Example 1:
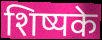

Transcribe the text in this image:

शिष्यके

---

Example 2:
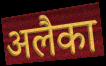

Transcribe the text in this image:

अलैका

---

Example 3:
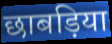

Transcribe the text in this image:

छाबड़िया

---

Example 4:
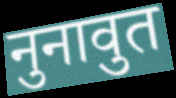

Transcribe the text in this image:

नुनावुत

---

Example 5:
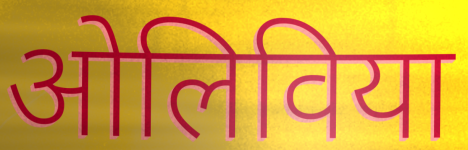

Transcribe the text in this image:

ओलिविया